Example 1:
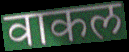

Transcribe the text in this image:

वाकल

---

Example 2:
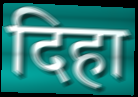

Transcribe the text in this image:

दिहा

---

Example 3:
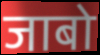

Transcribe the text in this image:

जाबो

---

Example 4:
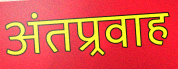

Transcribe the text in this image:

अंतप्र्रवाह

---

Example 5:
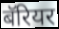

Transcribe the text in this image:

बॅरियर